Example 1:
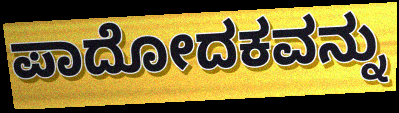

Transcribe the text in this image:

ಪಾದೋದಕವನ್ನು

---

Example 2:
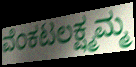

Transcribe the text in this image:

ವೆಂಕಟಲಕ್ಷ್ಮಮ್ಮ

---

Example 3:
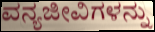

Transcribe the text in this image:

ವನ್ಯಜೀವಿಗಳನ್ನು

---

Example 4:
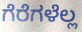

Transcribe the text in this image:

ಗೆರೆಗಳೆಲ್ಲ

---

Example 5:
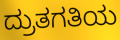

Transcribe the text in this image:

ದ್ರುತಗತಿಯ